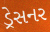
ડ્રેસનર